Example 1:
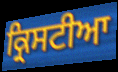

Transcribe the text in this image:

ਕ੍ਰਿਸਟੀਆ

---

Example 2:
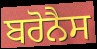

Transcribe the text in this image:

ਬਰੋਨੈਸ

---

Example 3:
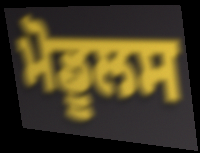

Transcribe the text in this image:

ਮੋਡੂਲਸ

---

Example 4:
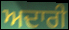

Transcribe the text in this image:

ਅਦਾਰੀ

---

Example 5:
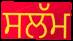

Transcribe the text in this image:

ਸਲੱਮ